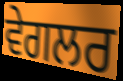
ਵੇਗਲਰ